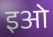
इओ